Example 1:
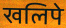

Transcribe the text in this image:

खलिपे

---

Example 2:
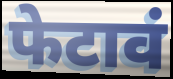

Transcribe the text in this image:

फेटावं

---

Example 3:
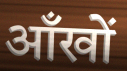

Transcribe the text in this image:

आँखों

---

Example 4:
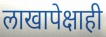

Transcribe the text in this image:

लाखापेक्षाही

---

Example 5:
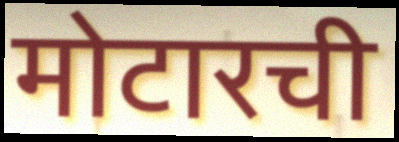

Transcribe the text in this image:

मोटारची